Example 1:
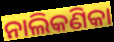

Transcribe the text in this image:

ନାଲିକଣିକା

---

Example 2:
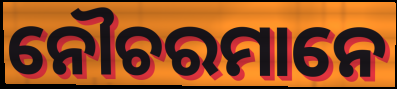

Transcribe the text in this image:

ନୌଚରମାନେ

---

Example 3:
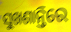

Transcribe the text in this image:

ସୁଖଶାନ୍ତିରେ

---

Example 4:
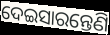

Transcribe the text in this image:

ଦେଇସାରନ୍ତେଣି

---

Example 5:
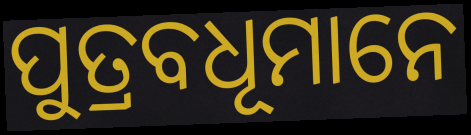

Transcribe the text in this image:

ପୁତ୍ରବଧୂମାନେ